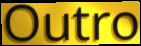
Outro